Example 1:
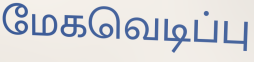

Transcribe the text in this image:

மேகவெடிப்பு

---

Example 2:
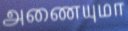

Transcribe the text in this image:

அணையுமா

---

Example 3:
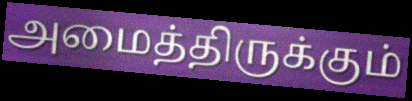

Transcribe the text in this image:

அமைத்திருக்கும்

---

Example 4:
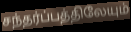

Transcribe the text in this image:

சந்தர்ப்பத்திலேயும்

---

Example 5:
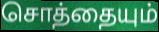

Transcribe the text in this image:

சொத்தையும்